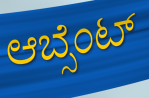
ಆಬ್ಸೆಂಟ್